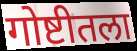
गोष्टीतला